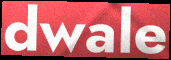
dwale